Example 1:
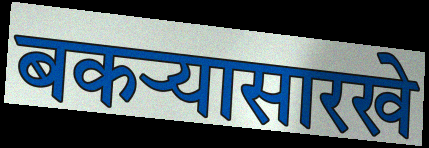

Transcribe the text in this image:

बकऱ्यासारखे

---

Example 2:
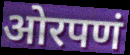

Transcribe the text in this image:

ओरपणं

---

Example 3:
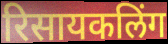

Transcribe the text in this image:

रिसायकलिंग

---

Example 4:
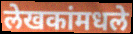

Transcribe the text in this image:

लेखकांमधले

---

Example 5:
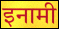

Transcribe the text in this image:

इनामी